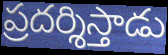
ప్రదర్శిస్తాడు